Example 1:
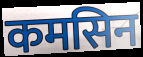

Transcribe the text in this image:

कमसिन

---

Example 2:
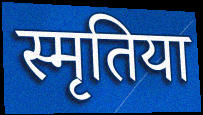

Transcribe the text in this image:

स्मृतिया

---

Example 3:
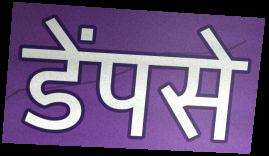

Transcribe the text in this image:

डेंपसे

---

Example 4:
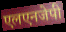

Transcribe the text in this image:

एलएनजेपी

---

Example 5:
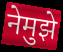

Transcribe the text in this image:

नेमुझे